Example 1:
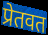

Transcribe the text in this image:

प्रेतवत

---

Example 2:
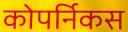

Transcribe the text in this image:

कोपर्निकस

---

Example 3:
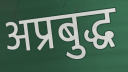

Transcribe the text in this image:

अप्रबुद्ध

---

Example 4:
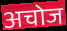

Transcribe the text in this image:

अचोज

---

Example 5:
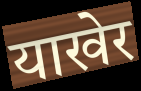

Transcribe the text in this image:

याखेर